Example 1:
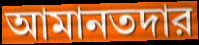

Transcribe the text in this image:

আমানতদার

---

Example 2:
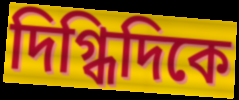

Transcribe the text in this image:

দিগ্ধিদিকে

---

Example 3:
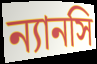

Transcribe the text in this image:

ন্যানসি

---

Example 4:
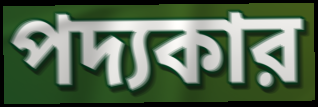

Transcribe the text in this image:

পদ্যকার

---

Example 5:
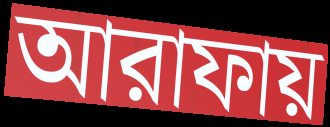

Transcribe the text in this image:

আরাফায়